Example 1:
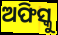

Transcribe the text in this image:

ଅଫିସ୍କୁ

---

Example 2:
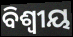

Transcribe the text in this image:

ବିଶ୍ଵୀୟ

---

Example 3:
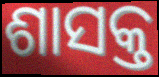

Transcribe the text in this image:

ଶାସକ୍ତ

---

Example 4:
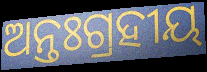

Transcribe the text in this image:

ଅନ୍ତଃଗ୍ରହୀୟ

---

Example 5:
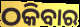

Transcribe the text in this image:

ଠକିବାର